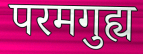
परमगुह्य